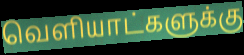
வெளியாட்களுக்கு